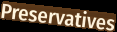
Preservatives